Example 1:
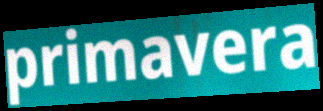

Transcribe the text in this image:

primavera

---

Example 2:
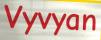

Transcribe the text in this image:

Vyvyan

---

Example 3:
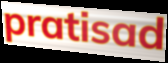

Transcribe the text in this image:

pratisad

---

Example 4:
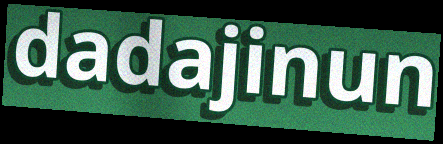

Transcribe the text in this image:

dadajinun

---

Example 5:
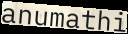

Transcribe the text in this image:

anumathi